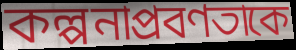
কল্পনাপ্রবণতাকে